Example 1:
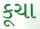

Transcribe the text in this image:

કૂચા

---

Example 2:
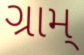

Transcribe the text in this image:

ગ્રામ્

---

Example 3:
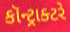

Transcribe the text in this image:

કૉન્ટ્રાક્ટરે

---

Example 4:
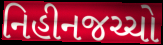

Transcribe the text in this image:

નિહીનજચ્ચો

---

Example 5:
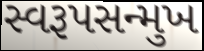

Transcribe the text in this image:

સ્વરૂપસન્મુખ